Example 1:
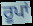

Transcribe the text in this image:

ਰੂਪਾਂ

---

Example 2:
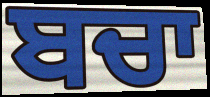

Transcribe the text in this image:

ਬਚਾ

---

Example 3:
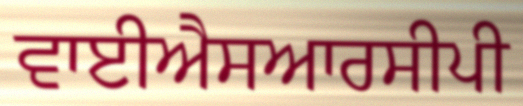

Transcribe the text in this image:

ਵਾਈਐਸਆਰਸੀਪੀ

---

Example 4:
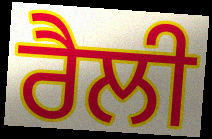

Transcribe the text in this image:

ਰੈਲੀ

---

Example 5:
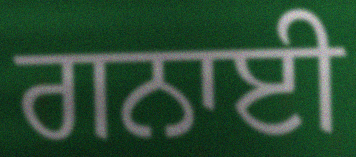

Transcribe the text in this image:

ਗਨਾਈ